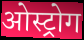
ओस्ट्रोग